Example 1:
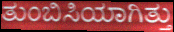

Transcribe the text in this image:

ತುಂಬಿಸಿಯಾಗಿತ್ತು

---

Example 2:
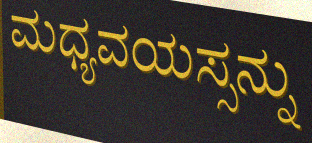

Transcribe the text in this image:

ಮಧ್ಯವಯಸ್ಸನ್ನು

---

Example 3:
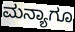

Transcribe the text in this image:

ಮನ್ಯಾಗೂ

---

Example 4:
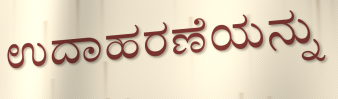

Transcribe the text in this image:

ಉದಾಹರಣೆಯನ್ನು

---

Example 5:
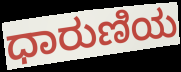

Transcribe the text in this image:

ಧಾರುಣಿಯ